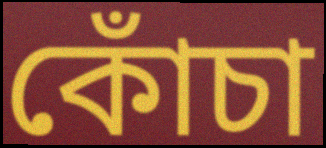
কোঁচা